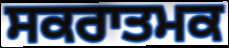
ਸਕਰਾਤਮਕ